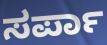
ಸರ್ಪಾ